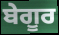
ਬੇਗੂਰ